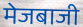
मेजबाजी